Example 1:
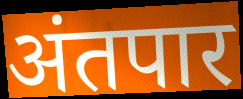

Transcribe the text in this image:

अंतपार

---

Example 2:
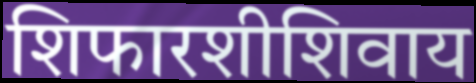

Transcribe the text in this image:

शिफारशीशिवाय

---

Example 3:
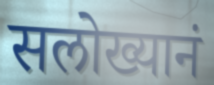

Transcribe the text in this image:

सलोख्यानं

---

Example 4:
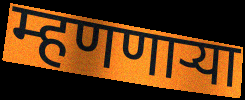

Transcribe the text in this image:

म्हणणार्‍या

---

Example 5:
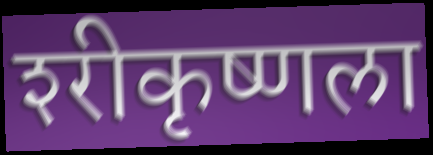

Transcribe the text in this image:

श्रीकृष्णला